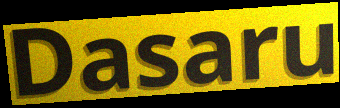
Dasaru